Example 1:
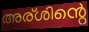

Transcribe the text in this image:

അര്ശിന്റെ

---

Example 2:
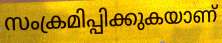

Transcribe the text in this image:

സംക്രമിപ്പിക്കുകയാണ്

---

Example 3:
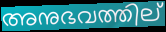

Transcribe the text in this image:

അനുഭവത്തില്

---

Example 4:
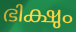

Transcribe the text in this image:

ഭിക്ഷും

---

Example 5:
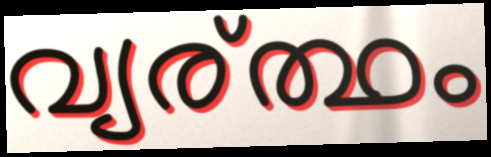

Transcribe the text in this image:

വ്യര്ത്ഥം